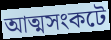
আত্মসংকটে